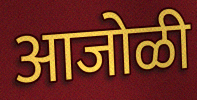
आजोळी